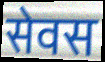
सेवस